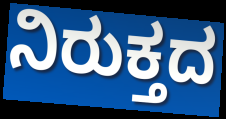
ನಿರುಕ್ತದ